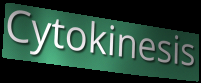
Cytokinesis